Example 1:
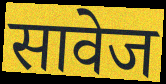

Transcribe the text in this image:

सावेज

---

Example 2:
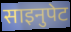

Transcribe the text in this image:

साइनुपेट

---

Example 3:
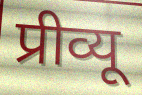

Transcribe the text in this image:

प्रीव्यू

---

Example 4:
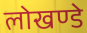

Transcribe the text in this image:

लोखण्डे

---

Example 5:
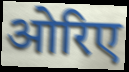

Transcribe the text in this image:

ओरिए